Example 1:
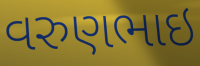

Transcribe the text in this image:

વરુણભાઇ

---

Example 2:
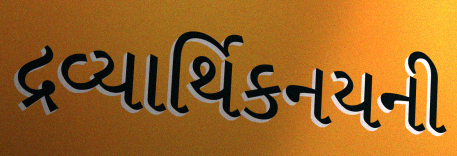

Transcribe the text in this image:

દ્રવ્યાર્થિકનયની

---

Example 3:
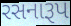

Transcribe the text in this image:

રસનારૂપ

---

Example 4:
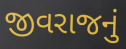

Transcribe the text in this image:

જીવરાજનું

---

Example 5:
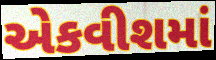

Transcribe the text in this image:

એકવીશમાં